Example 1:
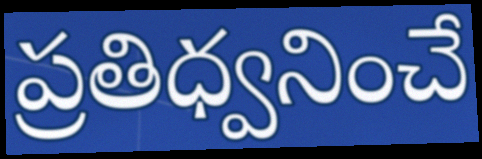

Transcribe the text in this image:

ప్రతిధ్వనించే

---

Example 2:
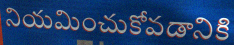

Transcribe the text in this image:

నియమించుకోవడానికి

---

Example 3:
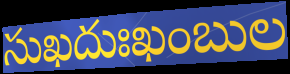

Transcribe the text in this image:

సుఖదుఃఖంబుల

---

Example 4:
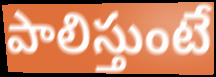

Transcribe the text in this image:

పాలిస్తుంటే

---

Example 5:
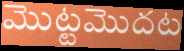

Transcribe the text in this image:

మొట్టమొదట